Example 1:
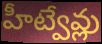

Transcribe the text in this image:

హీట్వేవ్లు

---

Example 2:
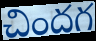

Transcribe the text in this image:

చిందగ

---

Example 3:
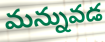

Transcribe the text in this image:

మన్నువడ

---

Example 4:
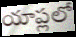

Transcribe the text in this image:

యాప్లలో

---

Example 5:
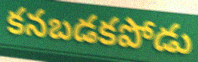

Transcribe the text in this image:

కనబడకపోడు